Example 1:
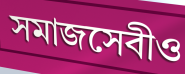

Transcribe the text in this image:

সমাজসেবীও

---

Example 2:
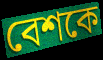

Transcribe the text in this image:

বেশকে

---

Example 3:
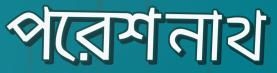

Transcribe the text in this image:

পরেশনাথ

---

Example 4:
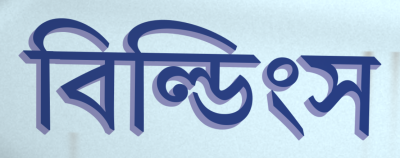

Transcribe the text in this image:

বিল্ডিংস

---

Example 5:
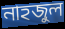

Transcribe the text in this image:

নাহজুল